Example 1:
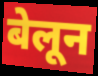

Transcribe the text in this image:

बेलून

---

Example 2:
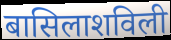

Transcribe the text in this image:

बासिलाशविली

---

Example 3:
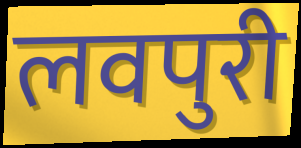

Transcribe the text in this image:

लवपुरी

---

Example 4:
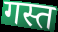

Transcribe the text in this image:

गस्त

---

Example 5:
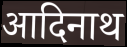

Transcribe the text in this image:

आदिनाथ